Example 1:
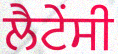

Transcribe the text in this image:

ਲੈਟੇਂਸੀ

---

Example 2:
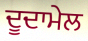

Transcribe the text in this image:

ਦੂਦਾਮੇਲ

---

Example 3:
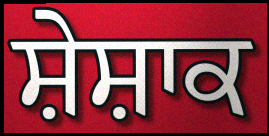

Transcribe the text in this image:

ਸ਼ੇਸ਼ਾਕ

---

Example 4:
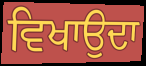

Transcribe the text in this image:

ਵਿਖਾਉਦਾ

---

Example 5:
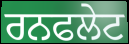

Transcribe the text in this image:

ਰਨਫਲੇਟ